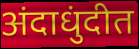
अंदाधुंदीत